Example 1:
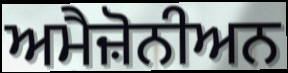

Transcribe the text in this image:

ਅਮੈਜ਼ੋਨੀਅਨ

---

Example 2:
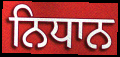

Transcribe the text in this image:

ਨਿਧਾਨ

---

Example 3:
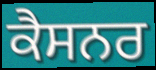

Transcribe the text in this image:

ਕੈਸਨਰ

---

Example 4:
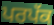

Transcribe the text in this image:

ਪਰਪੱਕ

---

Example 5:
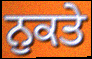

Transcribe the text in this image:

ਨੁਕਤੇ